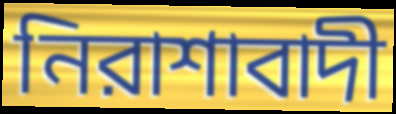
নিরাশাবাদী